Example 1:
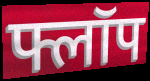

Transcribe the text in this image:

फ्लॉप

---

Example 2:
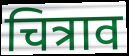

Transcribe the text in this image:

चित्राव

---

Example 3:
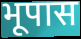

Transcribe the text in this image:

भूपास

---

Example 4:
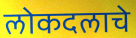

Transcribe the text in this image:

लोकदलाचे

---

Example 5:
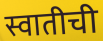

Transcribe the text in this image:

स्वातीची